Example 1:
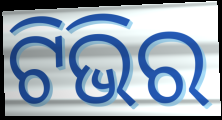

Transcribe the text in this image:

ଟିଭିର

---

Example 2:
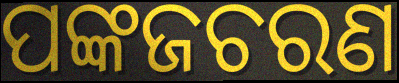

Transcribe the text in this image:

ପଙ୍କଜଚରଣ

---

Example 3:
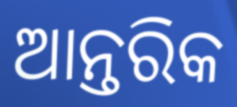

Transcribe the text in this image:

ଆନ୍ତରିକ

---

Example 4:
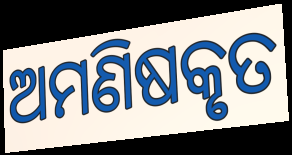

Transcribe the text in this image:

ଅମଣିଷକୃତ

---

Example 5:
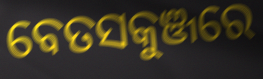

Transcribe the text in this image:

ବେତସକୁଞ୍ଜରେ